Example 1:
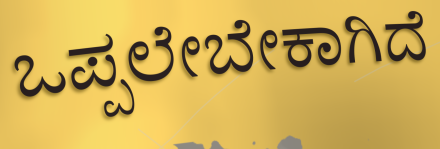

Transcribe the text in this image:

ಒಪ್ಪಲೇಬೇಕಾಗಿದೆ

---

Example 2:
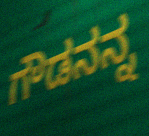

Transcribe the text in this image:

ಗೌಡನನ್ನ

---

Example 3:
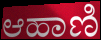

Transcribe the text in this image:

ಆಹಾಣಿ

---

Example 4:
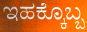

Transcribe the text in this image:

ಇಹಕ್ಕೊಬ್ಬ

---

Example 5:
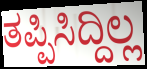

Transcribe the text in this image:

ತಪ್ಪಿಸಿದ್ದಿಲ್ಲ